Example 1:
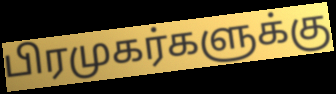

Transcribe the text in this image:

பிரமுகர்களுக்கு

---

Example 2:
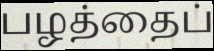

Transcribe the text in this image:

பழத்தைப்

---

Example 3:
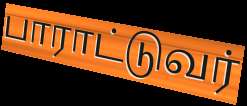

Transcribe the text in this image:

பாராட்டுவர்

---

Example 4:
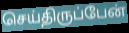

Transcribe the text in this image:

செய்திருப்பேன்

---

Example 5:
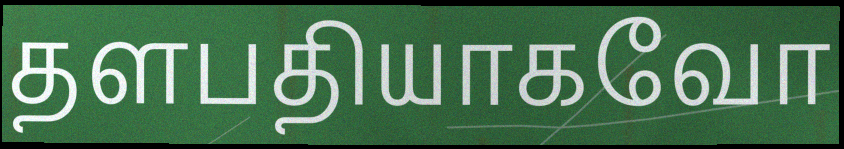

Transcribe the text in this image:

தளபதியாகவோ